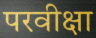
परवीक्षा